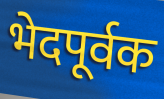
भेदपूर्वक